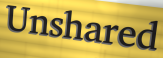
Unshared